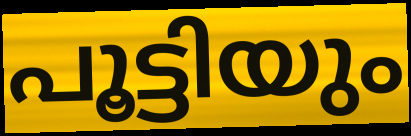
പൂട്ടിയും